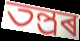
তন্ত্ৰৰ